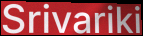
Srivariki